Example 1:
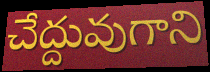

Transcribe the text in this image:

చేద్దువుగాని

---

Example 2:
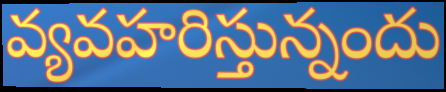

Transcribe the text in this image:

వ్యవహరిస్తున్నందు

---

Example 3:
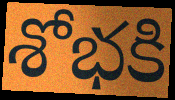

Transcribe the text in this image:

శోభకి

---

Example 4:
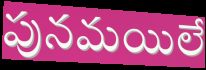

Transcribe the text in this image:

పునమయిలే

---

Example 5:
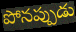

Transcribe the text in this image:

పోనప్పుడు